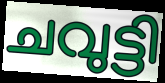
ചവുട്ടി